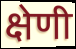
क्षेणी